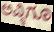
ಅವ್ಳಿಗೂ